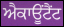
ਐਕਾਊਂਟੈਂਟ